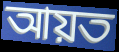
আয়ত